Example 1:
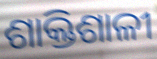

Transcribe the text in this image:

ଶାକ୍ତିଶାଳୀ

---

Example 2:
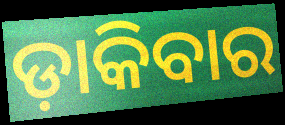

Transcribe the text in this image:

ଡ଼ାକିବାର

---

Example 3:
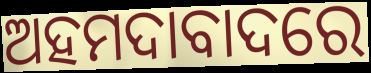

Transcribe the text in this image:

ଅହମଦାବାଦରେ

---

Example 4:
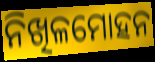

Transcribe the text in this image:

ନିଖିଳମୋହନ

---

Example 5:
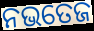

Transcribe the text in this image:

ନଭତେଜ